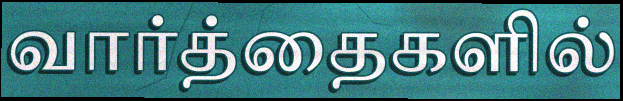
வார்த்தைகளில்